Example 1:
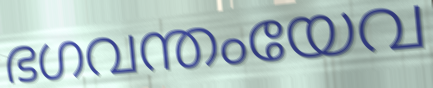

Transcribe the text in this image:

ഭഗവന്തംയേവ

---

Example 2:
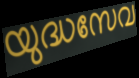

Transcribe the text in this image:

യുദ്ധസേവ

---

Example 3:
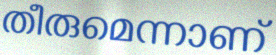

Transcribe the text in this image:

തീരുമെന്നാണ്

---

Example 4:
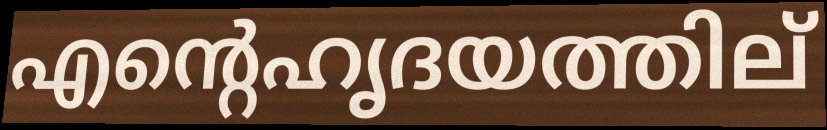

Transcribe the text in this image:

എന്റെഹൃദയത്തില്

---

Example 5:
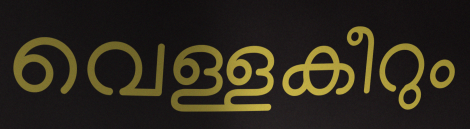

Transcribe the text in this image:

വെള്ളകീറും